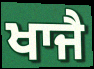
ਖਾਜੈ